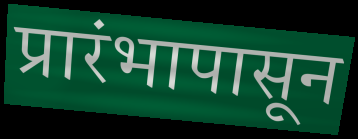
प्रारंभापासून